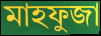
মাহফুজা